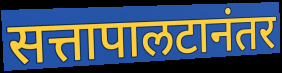
सत्तापालटानंतर